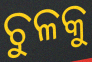
ଚୁଳକୁ